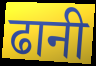
ढानी